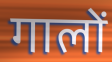
गालों